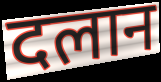
दलान